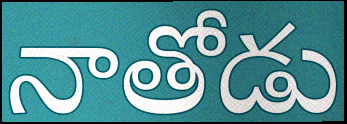
నాతోడు